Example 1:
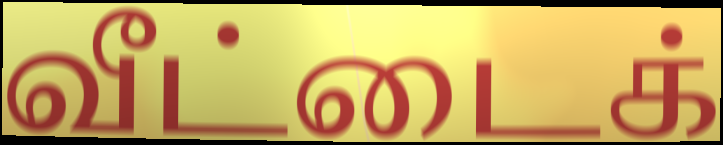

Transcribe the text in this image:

வீட்டைக்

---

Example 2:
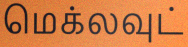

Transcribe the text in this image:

மெக்லவுட்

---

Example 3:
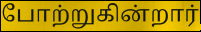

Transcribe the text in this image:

போற்றுகின்றார்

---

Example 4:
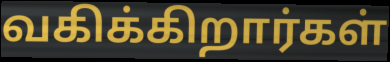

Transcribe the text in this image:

வகிக்கிறார்கள்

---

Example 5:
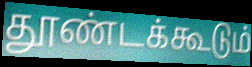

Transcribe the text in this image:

தூண்டக்கூடும்